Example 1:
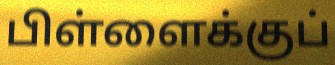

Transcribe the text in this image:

பிள்ளைக்குப்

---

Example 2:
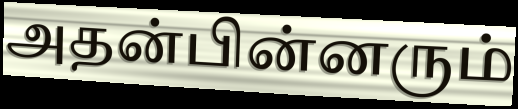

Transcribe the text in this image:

அதன்பின்னரும்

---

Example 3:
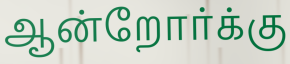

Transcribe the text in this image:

ஆன்றோர்க்கு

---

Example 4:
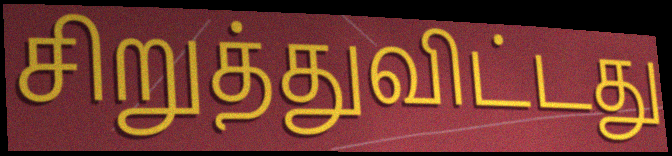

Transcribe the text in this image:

சிறுத்துவிட்டது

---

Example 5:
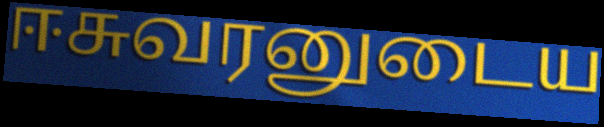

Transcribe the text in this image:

ஈசுவரனுடைய